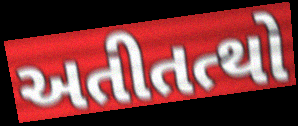
અતીતત્થો